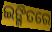
ଇଙ୍ଗିତରେ